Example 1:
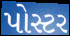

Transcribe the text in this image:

પોસ્ટર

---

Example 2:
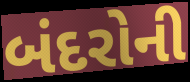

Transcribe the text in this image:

બંદરોની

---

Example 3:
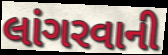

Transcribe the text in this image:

લાંગરવાની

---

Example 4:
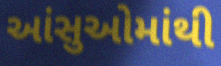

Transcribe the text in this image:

આંસુઓમાંથી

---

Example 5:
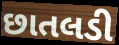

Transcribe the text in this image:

છાતલડી